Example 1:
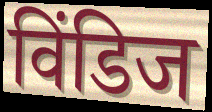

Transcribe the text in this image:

विंडिज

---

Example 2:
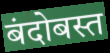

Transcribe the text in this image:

बंदोबस्त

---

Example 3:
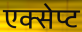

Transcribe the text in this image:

एक्सेप्ट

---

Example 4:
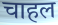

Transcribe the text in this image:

चाहल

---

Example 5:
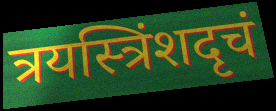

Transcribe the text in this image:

त्रयस्त्रिंशदृचं